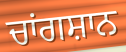
ਚਾਂਗਸ਼ਾਨ